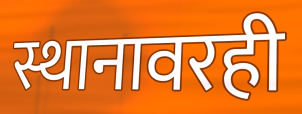
स्थानावरही